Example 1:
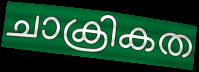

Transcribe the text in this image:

ചാക്രികത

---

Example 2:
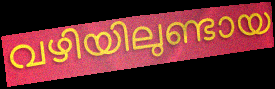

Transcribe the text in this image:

വഴിയിലുണ്ടായ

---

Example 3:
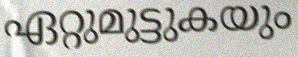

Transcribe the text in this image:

ഏറ്റുമുട്ടുകയും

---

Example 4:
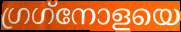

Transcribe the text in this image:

ഗ്രഗ്‌നോളയെ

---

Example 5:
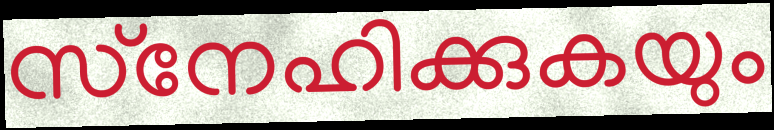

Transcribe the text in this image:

സ്‌നേഹിക്കുകയും